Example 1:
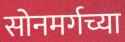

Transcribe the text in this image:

सोनमर्गच्या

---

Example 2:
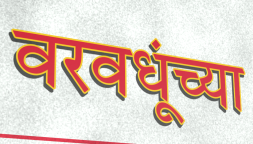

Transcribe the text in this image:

वरवधूंच्या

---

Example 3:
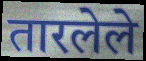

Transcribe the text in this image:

तारलेले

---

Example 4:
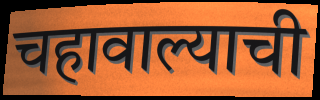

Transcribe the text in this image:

चहावाल्याची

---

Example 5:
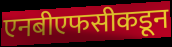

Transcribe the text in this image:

एनबीएफसीकडून